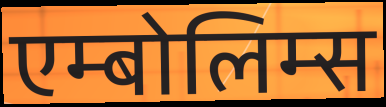
एम्बोलिम्स